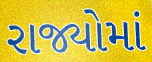
રાજ્યોમાં